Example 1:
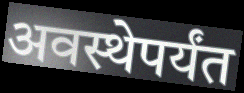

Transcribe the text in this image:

अवस्थेपर्यंत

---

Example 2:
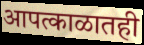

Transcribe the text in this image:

आपत्काळातही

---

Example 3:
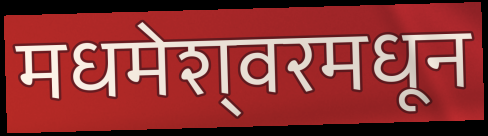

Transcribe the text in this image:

मधमेश्वरमधून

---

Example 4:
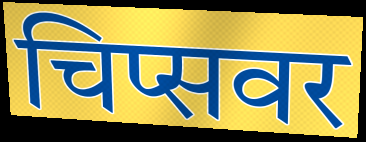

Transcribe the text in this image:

चिप्सवर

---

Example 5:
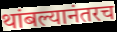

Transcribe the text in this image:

थांबल्यानंतरच